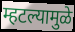
म्हटल्यामुळे